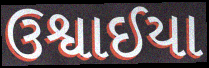
ઉશ્વાઈયા